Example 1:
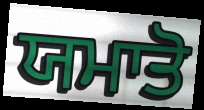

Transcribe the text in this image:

ਯਮਾਤੋ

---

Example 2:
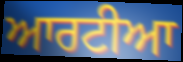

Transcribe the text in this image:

ਆਰਟੀਆ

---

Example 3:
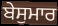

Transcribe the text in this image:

ਬੇਸੁਮਾਰ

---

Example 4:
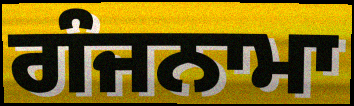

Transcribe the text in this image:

ਗੰਜਨਾਮਾ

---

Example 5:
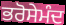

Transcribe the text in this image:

ਭਰੋਸੇਮੰਦ